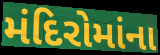
મંદિરોમાંના